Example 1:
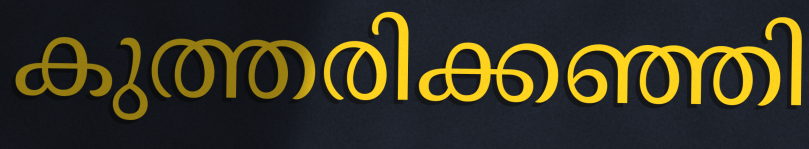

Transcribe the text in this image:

കുത്തരിക്കഞ്ഞി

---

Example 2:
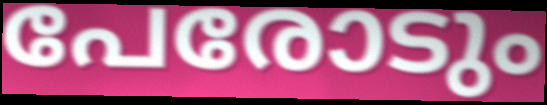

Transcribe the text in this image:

പേരോടും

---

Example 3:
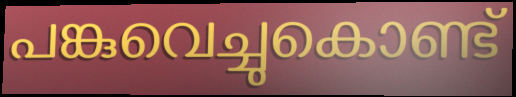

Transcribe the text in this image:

പങ്കുവെച്ചുകൊണ്ട്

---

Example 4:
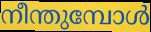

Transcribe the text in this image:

നീന്തുമ്പോൾ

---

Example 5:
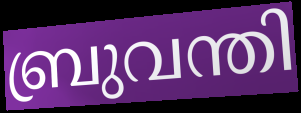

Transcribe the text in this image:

ബ്രുവന്തി